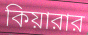
কিয়ারার